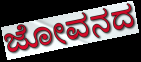
ಜೋವನದ